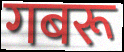
गबरू